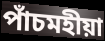
পাঁচমহীয়া